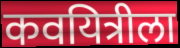
कवयित्रीला